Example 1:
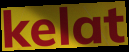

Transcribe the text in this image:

kelat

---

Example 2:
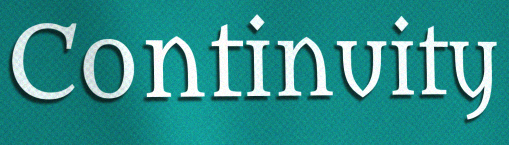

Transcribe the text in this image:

Continuity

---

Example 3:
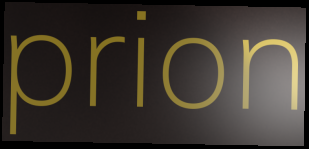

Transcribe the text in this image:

prion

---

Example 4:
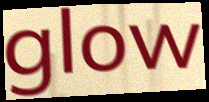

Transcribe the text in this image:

glow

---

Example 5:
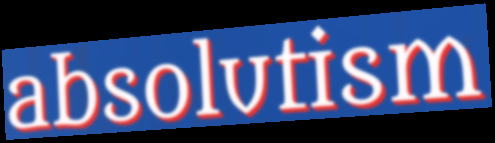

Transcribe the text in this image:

absolutism